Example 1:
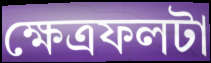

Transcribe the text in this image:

ক্ষেত্রফলটা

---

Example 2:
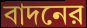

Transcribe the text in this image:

বাদনের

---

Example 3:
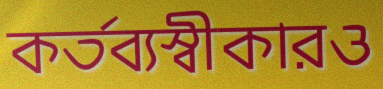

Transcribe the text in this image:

কর্তব্যস্বীকারও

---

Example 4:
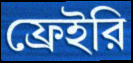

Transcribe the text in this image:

ফ্রেইরি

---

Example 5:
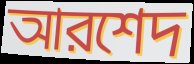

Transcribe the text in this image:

আরশেদ